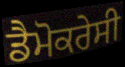
ਡੈਮੋਕਰੇਸੀ